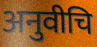
अनुवीचि